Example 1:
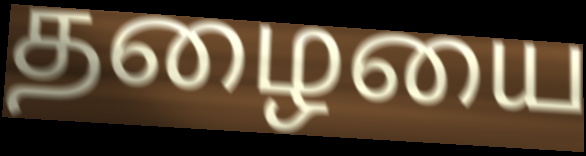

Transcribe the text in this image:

தழையை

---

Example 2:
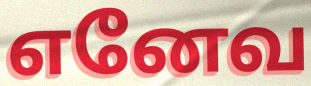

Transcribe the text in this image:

எனேவ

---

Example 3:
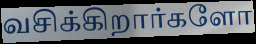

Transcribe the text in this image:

வசிக்கிறார்களோ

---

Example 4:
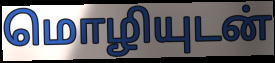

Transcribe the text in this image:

மொழியுடன்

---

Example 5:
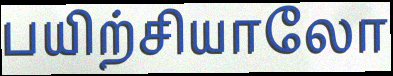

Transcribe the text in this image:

பயிற்சியாலோ